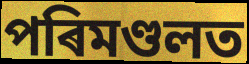
পৰিমণ্ডলত